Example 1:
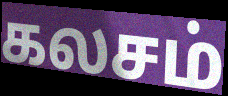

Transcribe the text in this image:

கலசம்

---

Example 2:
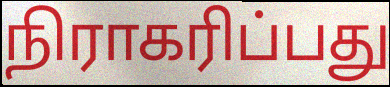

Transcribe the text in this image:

நிராகரிப்பது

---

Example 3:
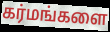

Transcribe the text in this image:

கர்மங்களை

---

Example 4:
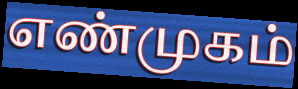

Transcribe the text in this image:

எண்முகம்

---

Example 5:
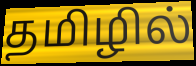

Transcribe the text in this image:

தமிழில்